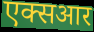
एक्सआर